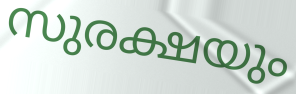
സുരക്ഷയും